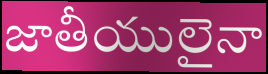
జాతీయులైనా